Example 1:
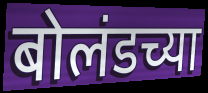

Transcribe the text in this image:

बोलंडच्या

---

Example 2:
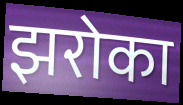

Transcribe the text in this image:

झरोका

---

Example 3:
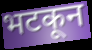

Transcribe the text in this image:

भटकून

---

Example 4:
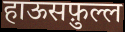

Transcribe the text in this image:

हाऊसफ़ुल्ल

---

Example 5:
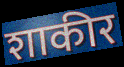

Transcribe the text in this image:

शाकीर